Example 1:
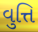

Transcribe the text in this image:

વુત્તિ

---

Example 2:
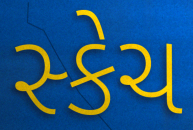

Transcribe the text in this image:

સ્કેચ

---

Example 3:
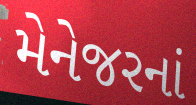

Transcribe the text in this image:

મેનેજરનાં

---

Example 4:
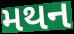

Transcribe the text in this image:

મથન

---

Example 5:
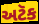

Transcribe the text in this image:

અટૅક